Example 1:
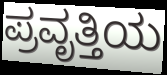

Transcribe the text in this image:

ಪ್ರವೃತ್ತಿಯ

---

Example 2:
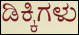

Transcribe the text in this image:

ಡಿಕ್ಕಿಗಳು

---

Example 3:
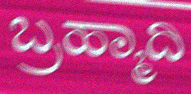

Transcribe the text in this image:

ಬ್ರಹ್ಮಾದಿ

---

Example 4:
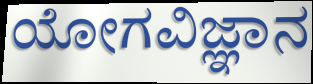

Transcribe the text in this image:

ಯೋಗವಿಜ್ಞಾನ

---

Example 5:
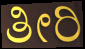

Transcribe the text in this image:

ತೀರಿ